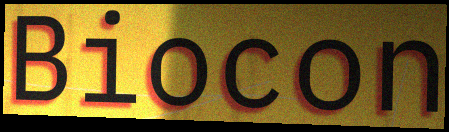
Biocon